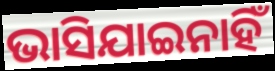
ଭାସିଯାଇନାହିଁ